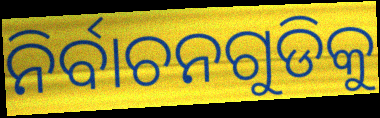
ନିର୍ବାଚନଗୁଡିକୁ